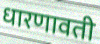
धारणावती